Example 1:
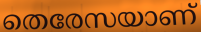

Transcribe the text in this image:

തെരേസയാണ്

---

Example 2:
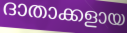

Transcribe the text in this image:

ദാതാക്കളായ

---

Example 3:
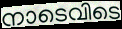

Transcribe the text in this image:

നാടെവിടെ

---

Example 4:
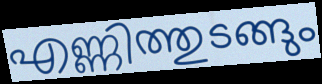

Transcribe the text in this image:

എണ്ണിത്തുടങ്ങും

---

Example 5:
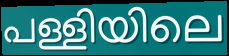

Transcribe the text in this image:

പള്ളിയിലെ